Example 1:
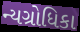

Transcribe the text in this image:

ન્યગ્રોધિકા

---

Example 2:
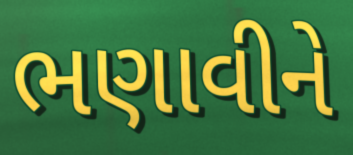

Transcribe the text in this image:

ભણાવીને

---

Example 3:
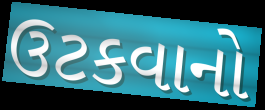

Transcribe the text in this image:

ઉટકવાનો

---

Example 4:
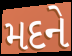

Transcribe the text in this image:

મદને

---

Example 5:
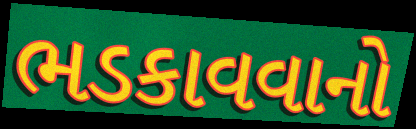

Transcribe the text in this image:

ભડકાવવાનો